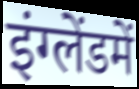
इंग्लेंडमें